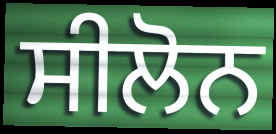
ਸੀਲੋਨ